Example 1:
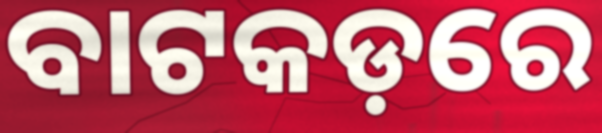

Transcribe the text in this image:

ବାଟକଡ଼ରେ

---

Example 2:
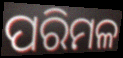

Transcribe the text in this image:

ପରିମଳ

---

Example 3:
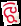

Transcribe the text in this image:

ଝି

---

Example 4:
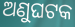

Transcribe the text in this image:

ଅଣୁଘଟକ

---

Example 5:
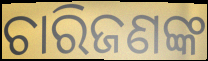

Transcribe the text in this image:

ଚାରିଜଣଙ୍କ